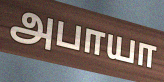
அபாயா